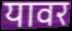
यावर